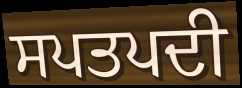
ਸਪਤਪਦੀ